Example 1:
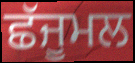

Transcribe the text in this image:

ਛੱਜੂਮਲ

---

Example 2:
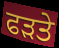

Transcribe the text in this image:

ਫੜਤੇ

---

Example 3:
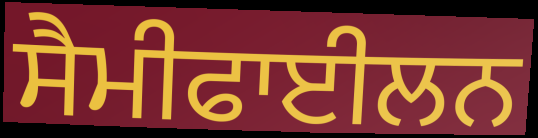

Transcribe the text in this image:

ਸੈਮੀਫਾਈਲਨ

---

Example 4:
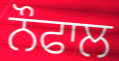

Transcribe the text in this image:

ਨੌਫਾਲ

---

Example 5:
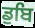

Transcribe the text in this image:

ਡੁਬਿ